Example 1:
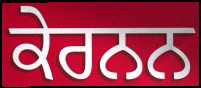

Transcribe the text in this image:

ਕੇਰਨਨ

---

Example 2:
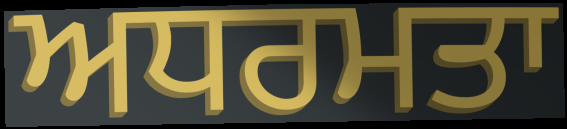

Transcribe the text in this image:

ਅਧਰਮਤਾ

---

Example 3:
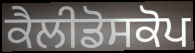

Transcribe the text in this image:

ਕੈਲੀਡੋਸਕੋਪ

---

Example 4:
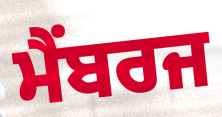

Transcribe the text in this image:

ਮੈਂਬਰਜ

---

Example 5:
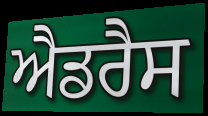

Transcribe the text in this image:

ਐਡਰੈਸ